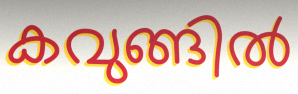
കവുങ്ങിൽ